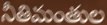
నీతిమంతుల